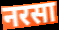
नरसा